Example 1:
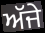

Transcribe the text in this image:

ਅੱਜੇ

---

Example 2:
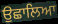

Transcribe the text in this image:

ਉਛਾਲਿਆ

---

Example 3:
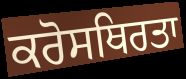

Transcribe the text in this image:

ਕਰੋਸਥਿਰਤਾ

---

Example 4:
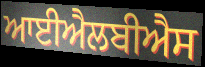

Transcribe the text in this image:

ਆਈਐਲਬੀਐਸ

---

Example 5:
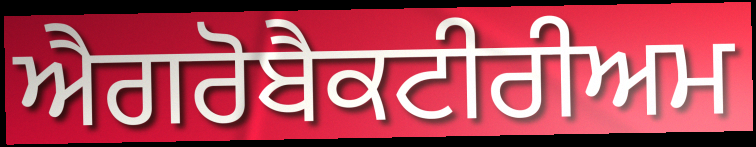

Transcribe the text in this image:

ਐਗਰੋਬੈਕਟੀਰੀਅਮ